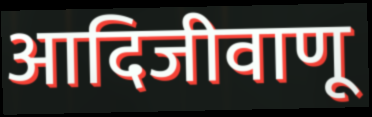
आदिजीवाणू